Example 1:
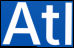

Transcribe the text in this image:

Atl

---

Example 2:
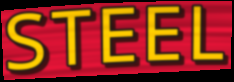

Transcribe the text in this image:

STEEL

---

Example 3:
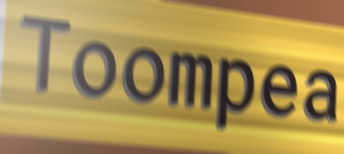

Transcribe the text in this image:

Toompea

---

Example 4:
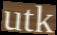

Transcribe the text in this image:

utk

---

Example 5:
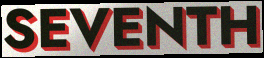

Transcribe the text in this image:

SEVENTH